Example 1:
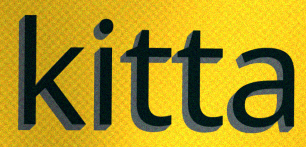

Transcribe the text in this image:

kitta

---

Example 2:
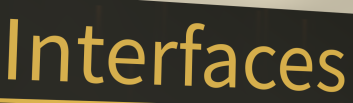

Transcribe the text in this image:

Interfaces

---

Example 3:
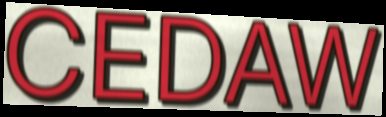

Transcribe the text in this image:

CEDAW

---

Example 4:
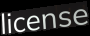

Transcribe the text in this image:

license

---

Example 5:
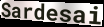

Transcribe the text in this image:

Sardesai